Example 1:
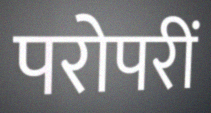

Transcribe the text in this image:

परोपरीं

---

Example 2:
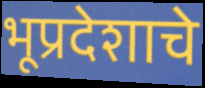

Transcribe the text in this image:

भूप्रदेशाचे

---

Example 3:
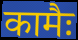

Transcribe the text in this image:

कामैः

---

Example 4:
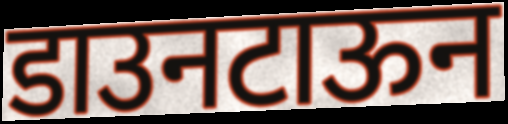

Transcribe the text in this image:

डाउनटाऊन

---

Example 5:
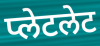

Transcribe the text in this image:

प्लेटलेट